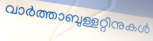
വാർത്താബുള്ളറ്റിനുകൾ